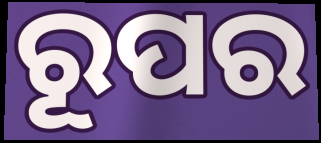
ରୂପର